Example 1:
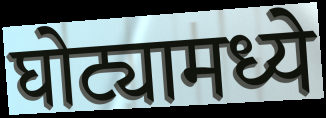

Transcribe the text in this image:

घोट्यामध्ये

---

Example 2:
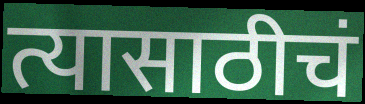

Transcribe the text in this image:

त्यासाठीचं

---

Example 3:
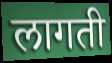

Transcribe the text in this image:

लागती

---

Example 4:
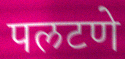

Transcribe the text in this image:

पलटणे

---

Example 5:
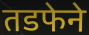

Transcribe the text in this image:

तडफेने